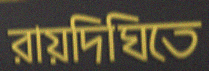
রায়দিঘিতে